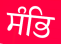
ਸੰਭਿ